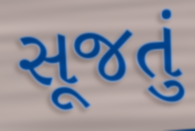
સૂજતું